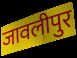
जावलीपुर